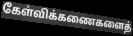
கேள்விக்கணைகளைத்